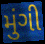
મુંગી